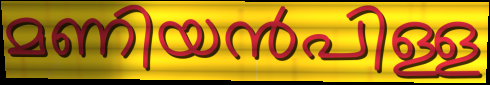
മണിയൻപിള്ള